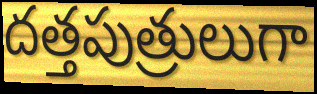
దత్తపుత్రులుగా